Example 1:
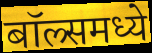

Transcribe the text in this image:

बॉल्समध्ये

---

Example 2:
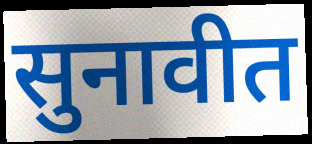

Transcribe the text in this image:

सुनावीत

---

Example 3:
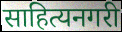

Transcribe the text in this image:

साहित्यनगरी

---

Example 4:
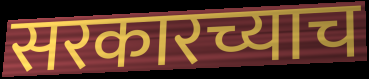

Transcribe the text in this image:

सरकारच्याच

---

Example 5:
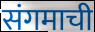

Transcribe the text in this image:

संगमाची